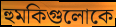
হুমকিগুলোকে